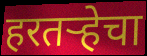
हरतऱ्हेचा